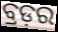
ବ୍ରଡ଼ର